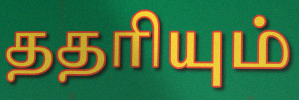
ததரியும்